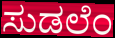
ಸುಡಲೆಂ